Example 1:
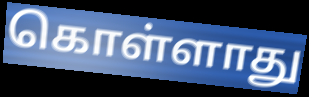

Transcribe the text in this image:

கொள்ளாது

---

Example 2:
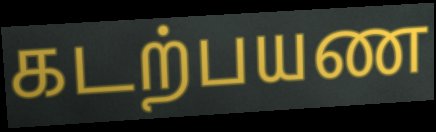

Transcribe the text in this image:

கடற்பயண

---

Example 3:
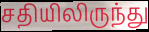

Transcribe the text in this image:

சதியிலிருந்து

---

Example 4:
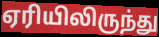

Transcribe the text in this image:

ஏரியிலிருந்து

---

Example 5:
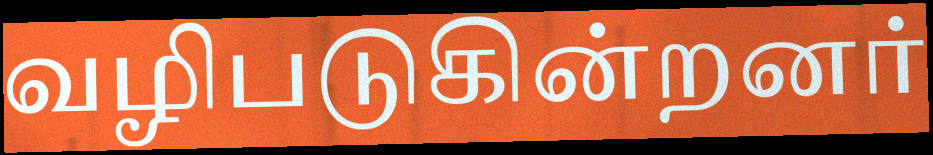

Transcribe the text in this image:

வழிபடுகின்றனர்